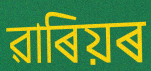
ৱাৰিয়ৰ